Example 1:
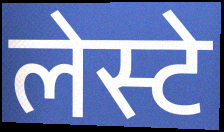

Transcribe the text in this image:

लेस्टे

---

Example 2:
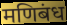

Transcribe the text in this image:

मणिबंध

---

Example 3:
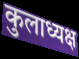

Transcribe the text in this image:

कुलाध्यक्ष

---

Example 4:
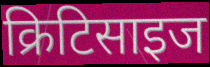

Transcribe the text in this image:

क्रिटिसाइज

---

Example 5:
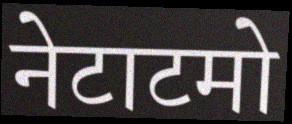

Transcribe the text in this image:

नेटाटमो